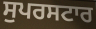
ਸੁਪਰਸਟਾਰ